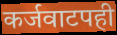
कर्जवाटपही